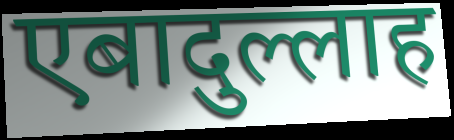
एबादुल्लाह